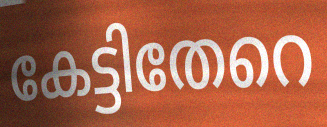
കേട്ടിതേറെ